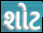
શોટ